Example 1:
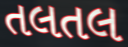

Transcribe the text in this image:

તલતલ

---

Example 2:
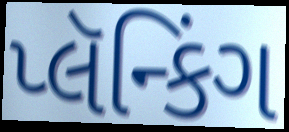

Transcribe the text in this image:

પ્લૅન્કિંગ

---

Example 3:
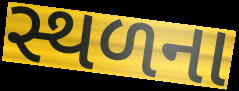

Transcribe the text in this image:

સ્થળના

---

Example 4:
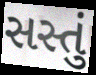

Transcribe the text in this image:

સસ્તું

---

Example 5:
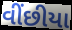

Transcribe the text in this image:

વીંછીયા